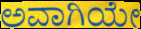
ಅವಾಗಿಯೇ